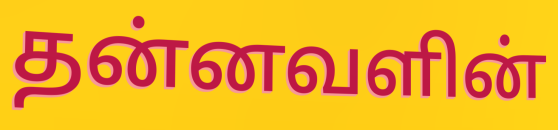
தன்னவளின்